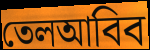
তেলআবিব